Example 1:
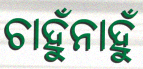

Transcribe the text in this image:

ଚାହୁଁନାହୁଁ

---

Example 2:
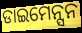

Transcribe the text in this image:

ଡାଇମେନ୍ସନ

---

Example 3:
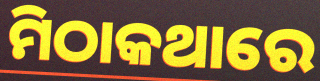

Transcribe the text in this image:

ମିଠାକଥାରେ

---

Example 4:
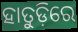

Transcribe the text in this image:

ହାତୁଡ଼ିରେ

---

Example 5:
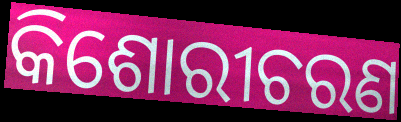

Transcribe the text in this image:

କିଶୋରୀଚରଣ